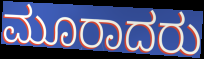
ಮೂರಾದರು